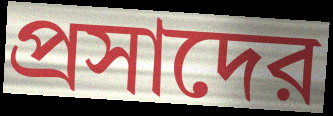
প্রসাদের